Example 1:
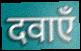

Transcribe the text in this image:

दवाएँ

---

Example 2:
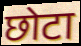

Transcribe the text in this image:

छोटा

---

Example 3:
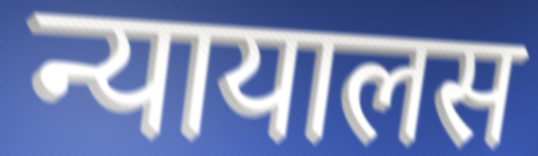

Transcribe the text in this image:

न्यायालस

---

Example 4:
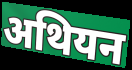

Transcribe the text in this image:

अथियन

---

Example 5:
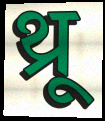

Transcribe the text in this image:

थ्रू